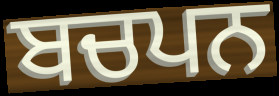
ਬਚਪਨ